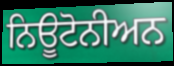
ਨਿਊਟੋਨੀਅਨ